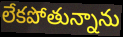
లేకపోతున్నాను